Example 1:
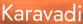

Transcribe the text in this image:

Karavadi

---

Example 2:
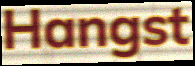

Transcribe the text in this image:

Hangst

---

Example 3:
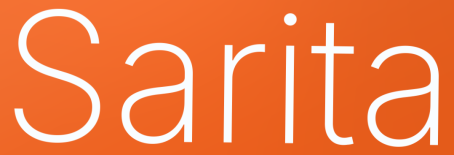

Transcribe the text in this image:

Sarita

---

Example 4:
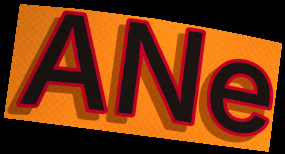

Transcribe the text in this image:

ANe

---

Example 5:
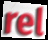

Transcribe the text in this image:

rel